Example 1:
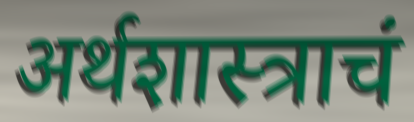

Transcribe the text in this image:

अर्थशास्त्राचं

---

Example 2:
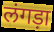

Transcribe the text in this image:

लंगड़ा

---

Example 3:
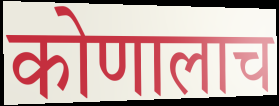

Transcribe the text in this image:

कोणालाच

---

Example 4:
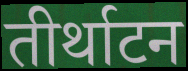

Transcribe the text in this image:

तीर्थाटन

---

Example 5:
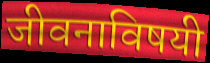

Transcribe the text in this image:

जीवनाविषयी